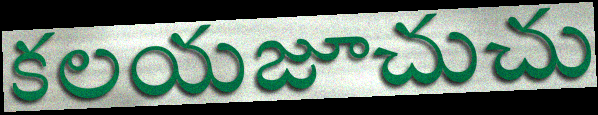
కలయజూచుచు